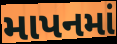
માપનમાં